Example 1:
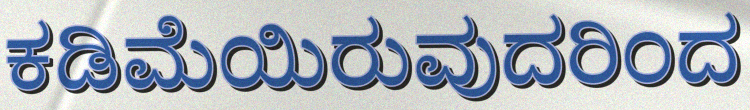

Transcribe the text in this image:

ಕಡಿಮೆಯಿರುವುದರಿಂದ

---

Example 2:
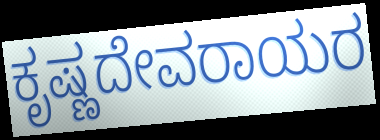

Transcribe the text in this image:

ಕೃಷ್ಣದೇವರಾಯರ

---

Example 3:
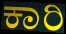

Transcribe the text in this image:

ಕಾರಿ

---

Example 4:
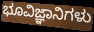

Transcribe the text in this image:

ಭೂವಿಜ್ಞಾನಿಗಳು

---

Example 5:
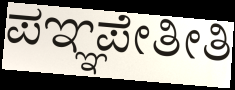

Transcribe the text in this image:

ಪಞ್ಞಪೇತೀತಿ